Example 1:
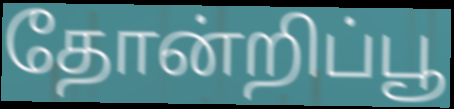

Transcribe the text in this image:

தோன்றிப்பூ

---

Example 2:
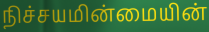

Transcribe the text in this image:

நிச்சயமின்மையின்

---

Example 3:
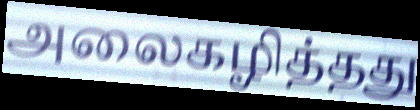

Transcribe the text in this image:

அலைகழித்தது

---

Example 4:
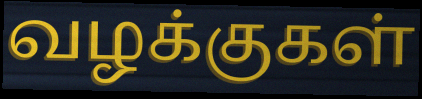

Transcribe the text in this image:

வழக்குகள்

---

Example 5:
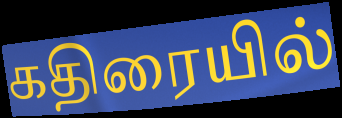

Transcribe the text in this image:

கதிரையில்